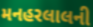
મનહરલાલની